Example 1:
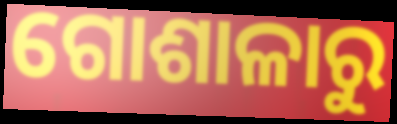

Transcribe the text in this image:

ଗୋଶାଳାରୁ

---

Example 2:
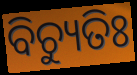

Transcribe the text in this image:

ବିଚ୍ୟୁତିଃ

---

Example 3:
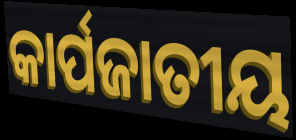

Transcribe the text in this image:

କାର୍ପଜାତୀୟ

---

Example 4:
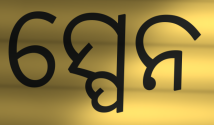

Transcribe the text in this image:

ସ୍ପେନ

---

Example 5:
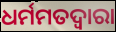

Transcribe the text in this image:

ଧର୍ମମତଦ୍ୱାରା